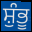
ਸ਼ੁੰਭੂ